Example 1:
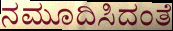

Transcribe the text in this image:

ನಮೂದಿಸಿದಂತೆ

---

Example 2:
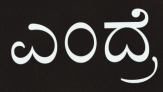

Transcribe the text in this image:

ಎಂದ್ರೆ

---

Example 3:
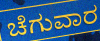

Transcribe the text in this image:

ಚೆಗುವಾರ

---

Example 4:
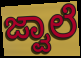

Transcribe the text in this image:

ಜ್ವಾಲೆ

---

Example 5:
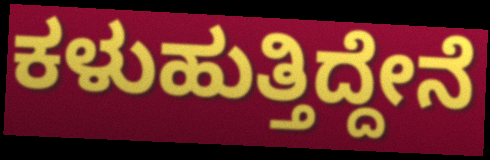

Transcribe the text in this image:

ಕಳುಹುತ್ತಿದ್ದೇನೆ